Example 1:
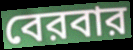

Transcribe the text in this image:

বেরবার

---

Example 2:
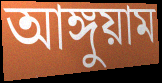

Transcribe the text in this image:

আঙ্গুয়াম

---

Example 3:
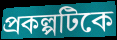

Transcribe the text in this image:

প্রকল্পটিকে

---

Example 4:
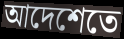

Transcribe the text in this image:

আদেশেতে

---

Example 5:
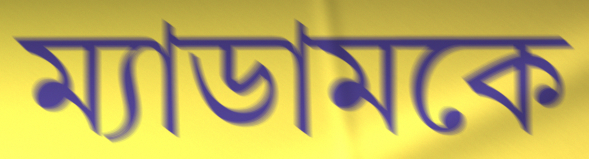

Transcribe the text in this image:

ম্যাডামকে